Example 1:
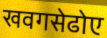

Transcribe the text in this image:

खवगसेढोए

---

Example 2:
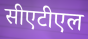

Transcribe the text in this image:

सीएटीएल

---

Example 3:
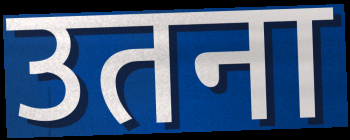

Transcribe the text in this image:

उतना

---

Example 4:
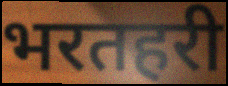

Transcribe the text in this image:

भरतहरी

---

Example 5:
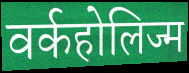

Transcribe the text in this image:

वर्कहोलिज्म